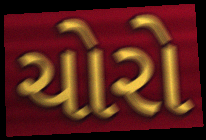
ચોરો